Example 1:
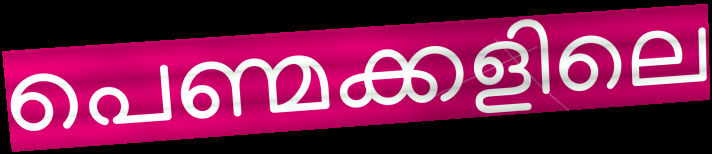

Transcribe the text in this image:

പെണ്മക്കളിലെ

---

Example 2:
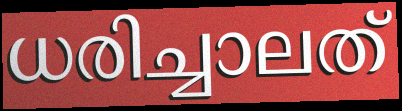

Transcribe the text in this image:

ധരിച്ചാലത്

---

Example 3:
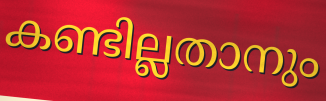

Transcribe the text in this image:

കണ്ടില്ലതാനും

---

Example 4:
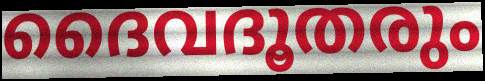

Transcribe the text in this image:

ദൈവദൂതരും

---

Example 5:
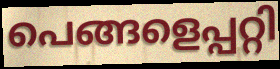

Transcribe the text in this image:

പെങ്ങളെപ്പറ്റി